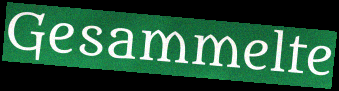
Gesammelte